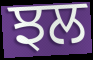
ਝਲ